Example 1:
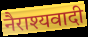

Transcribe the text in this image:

नैराश्यवादी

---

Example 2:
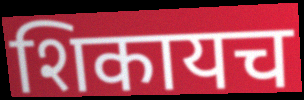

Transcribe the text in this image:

शिकायच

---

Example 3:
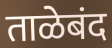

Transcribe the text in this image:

ताळेबंद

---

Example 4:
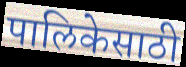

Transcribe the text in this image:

पालिकेसाठी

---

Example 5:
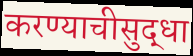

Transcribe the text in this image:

करण्याचीसुद्धा